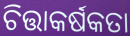
ଚିତ୍ତାକର୍ଷକତା